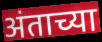
अंताच्या